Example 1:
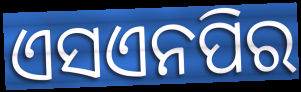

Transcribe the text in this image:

ଏସଏନପିର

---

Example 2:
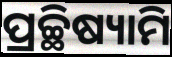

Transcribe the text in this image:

ପ୍ରଚ୍ଛିଷ୍ୟାମି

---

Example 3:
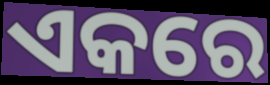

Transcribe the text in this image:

ଏକରେ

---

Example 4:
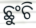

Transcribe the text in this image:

ଛୁଂଚି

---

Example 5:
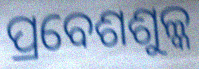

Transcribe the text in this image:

ପ୍ରବେଶଶୁଳ୍କ